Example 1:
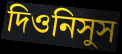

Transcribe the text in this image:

দিওনিসুস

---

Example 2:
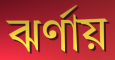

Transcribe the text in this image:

ঝর্ণায়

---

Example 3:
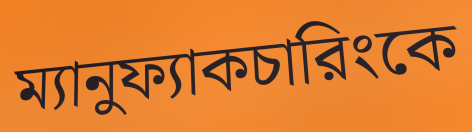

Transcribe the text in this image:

ম্যানুফ্যাকচারিংকে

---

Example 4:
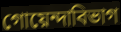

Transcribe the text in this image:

গোয়েন্দাবিভাগ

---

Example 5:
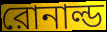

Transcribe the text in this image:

রোনাল্ড